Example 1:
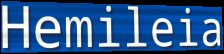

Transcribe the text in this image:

Hemileia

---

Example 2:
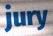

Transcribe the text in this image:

jury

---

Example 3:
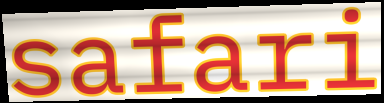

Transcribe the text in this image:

safari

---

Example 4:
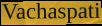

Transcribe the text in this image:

Vachaspati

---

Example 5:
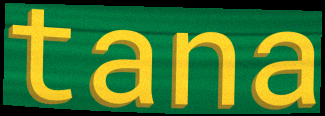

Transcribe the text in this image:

tana